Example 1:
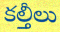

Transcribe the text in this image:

కల్తీలు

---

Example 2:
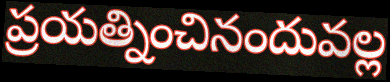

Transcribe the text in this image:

ప్రయత్నించినందువల్ల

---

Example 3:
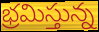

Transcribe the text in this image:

భ్రమిస్తున్న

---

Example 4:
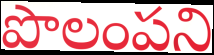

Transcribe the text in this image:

పొలంపని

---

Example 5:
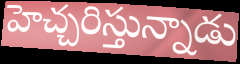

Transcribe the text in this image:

హెచ్చరిస్తున్నాడు